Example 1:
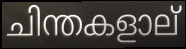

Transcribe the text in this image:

ചിന്തകളാല്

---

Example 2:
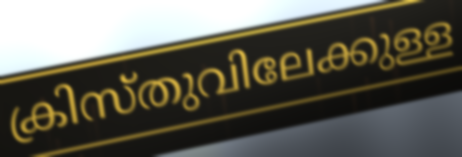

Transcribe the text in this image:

ക്രിസ്തുവിലേക്കുള്ള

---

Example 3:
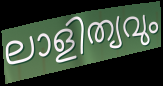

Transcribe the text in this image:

ലാളിത്യവും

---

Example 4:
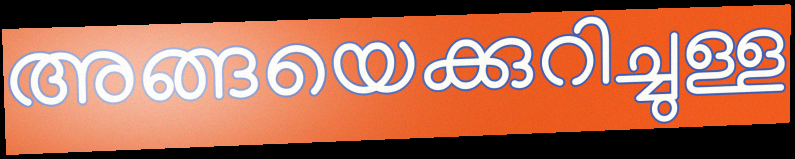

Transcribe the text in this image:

അങ്ങയെക്കുറിച്ചുള്ള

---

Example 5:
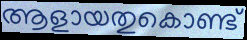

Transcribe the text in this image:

ആളായതുകൊണ്ട്